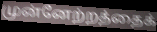
முன்னேற்றத்தைக்